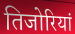
तिजोरियां